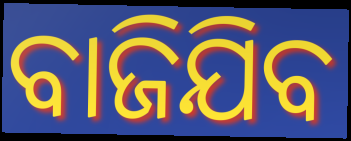
ବାଜିଯିବ